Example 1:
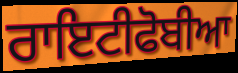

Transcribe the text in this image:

ਰਾਇਟੀਫੋਬੀਆ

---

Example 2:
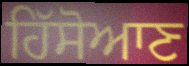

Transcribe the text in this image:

ਹਿੱਸੋਆਣ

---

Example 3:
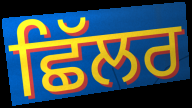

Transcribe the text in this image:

ਛਿੱਲਰ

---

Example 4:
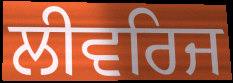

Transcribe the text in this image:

ਲੀਵਰਿਜ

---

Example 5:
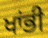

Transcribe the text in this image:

ਖਾਂਭੀ